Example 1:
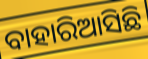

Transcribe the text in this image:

ବାହାରିଆସିଛି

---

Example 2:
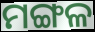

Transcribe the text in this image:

ମଙ୍ଗଳ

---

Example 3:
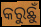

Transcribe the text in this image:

କରୁଛୁଁ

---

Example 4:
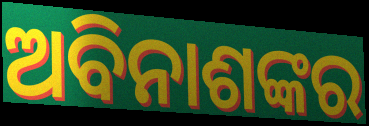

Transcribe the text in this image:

ଅବିନାଶଙ୍କର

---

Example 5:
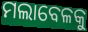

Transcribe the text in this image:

ମଲାବେଳକୁ